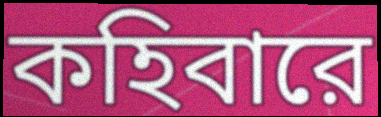
কহিবারে